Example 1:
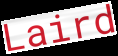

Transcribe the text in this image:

Laird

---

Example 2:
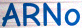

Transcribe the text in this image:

ARNo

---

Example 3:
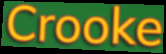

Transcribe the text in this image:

Crooke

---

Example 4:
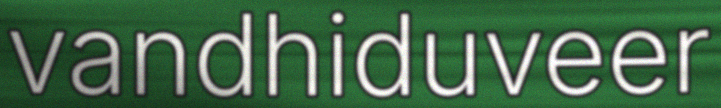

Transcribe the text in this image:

vandhiduveer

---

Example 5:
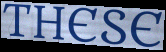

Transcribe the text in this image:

THESE